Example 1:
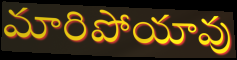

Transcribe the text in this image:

మారిపోయావు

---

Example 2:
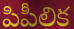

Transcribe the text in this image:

పిపీలిక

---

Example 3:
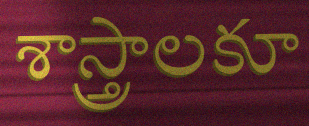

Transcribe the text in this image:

శాస్త్రాలకూ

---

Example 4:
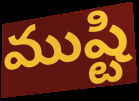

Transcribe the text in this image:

ముష్టి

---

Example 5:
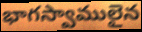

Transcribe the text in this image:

భాగస్వాములైన